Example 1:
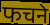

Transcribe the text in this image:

फचने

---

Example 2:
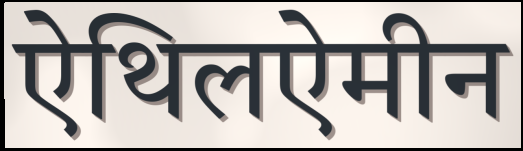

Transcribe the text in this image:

ऐथिलऐमीन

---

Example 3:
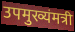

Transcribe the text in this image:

उपमुख्यंमत्री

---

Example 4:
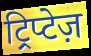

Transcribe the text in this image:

ट्रिप्टेज़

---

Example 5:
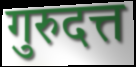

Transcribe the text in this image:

गुरुदत्त